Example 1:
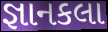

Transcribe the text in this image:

જ્ઞાનકલા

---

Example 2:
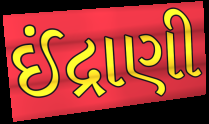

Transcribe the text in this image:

ઈંદ્રાણી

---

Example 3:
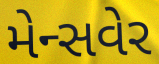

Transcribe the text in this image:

મેન્સવેર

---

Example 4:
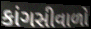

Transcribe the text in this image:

કાંગસીવાળો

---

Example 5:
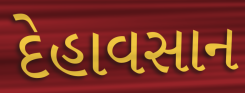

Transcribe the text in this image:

દેહાવસાન